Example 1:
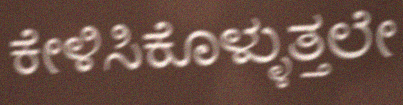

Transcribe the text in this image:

ಕೇಳಿಸಿಕೊಳ್ಳುತ್ತಲೇ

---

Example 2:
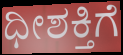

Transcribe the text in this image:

ಧೀಶಕ್ತಿಗೆ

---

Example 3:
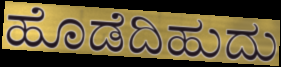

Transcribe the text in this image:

ಹೊಡೆದಿಹುದು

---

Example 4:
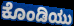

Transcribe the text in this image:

ಕೊಂಡಿಯು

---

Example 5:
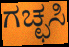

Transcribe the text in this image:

ಗಚ್ಛಸಿ